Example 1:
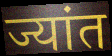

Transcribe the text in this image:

ज्यांत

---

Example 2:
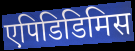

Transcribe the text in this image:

एपिडिडिमिस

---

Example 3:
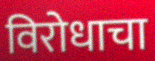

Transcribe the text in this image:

विरोधाचा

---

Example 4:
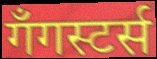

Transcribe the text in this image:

गँगस्टर्स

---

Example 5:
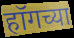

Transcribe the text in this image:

हॉगच्या